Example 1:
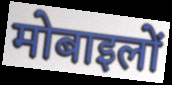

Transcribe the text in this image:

मोबाइलों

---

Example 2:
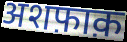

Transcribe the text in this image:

अशफ़ाक़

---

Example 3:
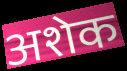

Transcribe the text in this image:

अशेक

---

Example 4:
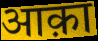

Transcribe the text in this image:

आक़ा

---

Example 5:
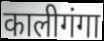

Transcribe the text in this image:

कालीगंगा